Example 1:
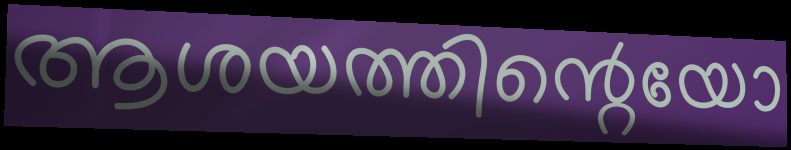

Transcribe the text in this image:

ആശയത്തിന്റെയോ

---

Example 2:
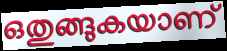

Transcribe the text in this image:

ഒതുങ്ങുകയാണ്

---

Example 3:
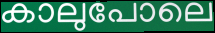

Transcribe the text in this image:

കാലുപോലെ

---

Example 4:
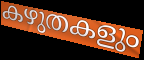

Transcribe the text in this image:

കഴുതകളും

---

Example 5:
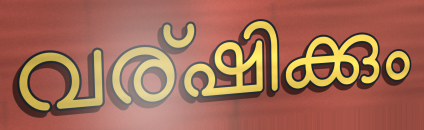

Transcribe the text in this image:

വര്ഷിക്കും